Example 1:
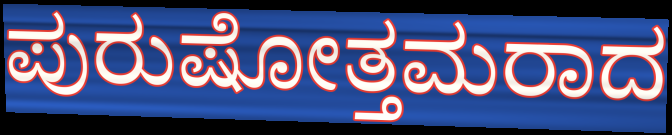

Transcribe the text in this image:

ಪುರುಷೋತ್ತಮರಾದ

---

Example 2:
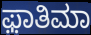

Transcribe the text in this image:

ಫ಼ಾತಿಮಾ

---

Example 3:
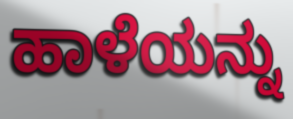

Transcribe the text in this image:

ಹಾಳೆಯನ್ನು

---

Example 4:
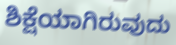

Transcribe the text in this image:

ಶಿಕ್ಷೆಯಾಗಿರುವುದು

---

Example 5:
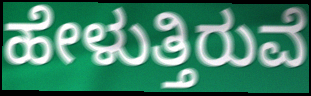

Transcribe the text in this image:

ಹೇಳುತ್ತಿರುವೆ